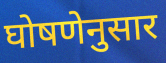
घोषणेनुसार